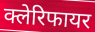
क्लेरिफायर